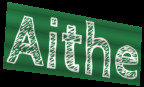
Aithe